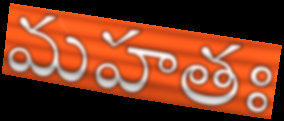
మహతః